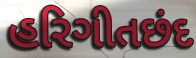
હરિગીતછંદ